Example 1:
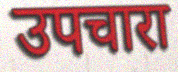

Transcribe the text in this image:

उपचारा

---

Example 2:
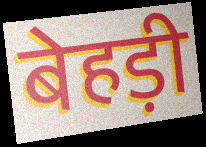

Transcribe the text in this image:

बेहड़ी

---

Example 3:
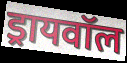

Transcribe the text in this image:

ड्रायवॉल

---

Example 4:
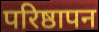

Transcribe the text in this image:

परिष्ठापन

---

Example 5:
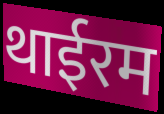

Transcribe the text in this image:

थाईरम